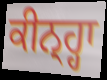
ਕੀਨ੍ਹ੍ਹਾ